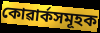
কোৱাৰ্কসমূহক